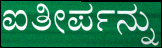
ಐತೀರ್ಪನ್ನು